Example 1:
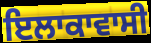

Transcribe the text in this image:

ਇਲਾਕਾਵਾਸੀ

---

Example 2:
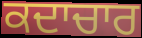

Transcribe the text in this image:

ਕਦਾਚਾਰ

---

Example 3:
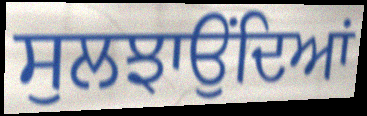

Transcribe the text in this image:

ਸੁਲਝਾਉਂਦਿਆਂ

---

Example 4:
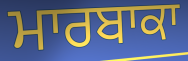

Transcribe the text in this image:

ਮਾਰਬਾਕਾ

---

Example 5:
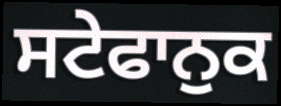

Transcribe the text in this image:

ਸਟੇਫਾਨੁਕ